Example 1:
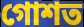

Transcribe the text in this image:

গোশত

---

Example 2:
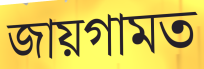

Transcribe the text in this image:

জায়গামত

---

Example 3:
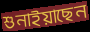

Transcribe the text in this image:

শুনাইয়াছেন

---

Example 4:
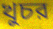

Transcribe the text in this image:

খুচর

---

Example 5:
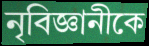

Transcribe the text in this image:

নৃবিজ্ঞানীকে